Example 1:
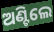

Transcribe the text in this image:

ଅଣ୍ଟିଲେ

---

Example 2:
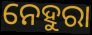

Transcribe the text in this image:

ନେହୁରା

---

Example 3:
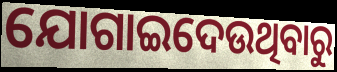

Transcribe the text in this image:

ଯୋଗାଇଦେଉଥିବାରୁ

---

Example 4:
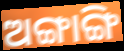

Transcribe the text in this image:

ଅଙ୍ଗାଙ୍ଗି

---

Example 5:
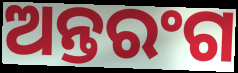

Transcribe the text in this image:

ଅନ୍ତରଂଗ